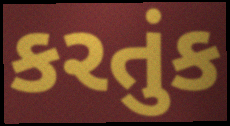
કરતુંક